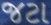
જટા